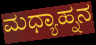
ಮಧ್ಯಾಹ್ನನ